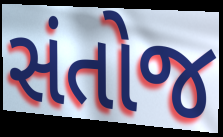
સંતોજ